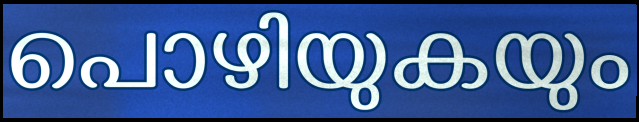
പൊഴിയുകയും